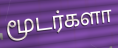
மூடர்களா